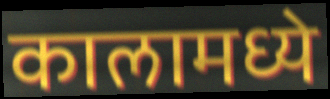
कालामध्ये